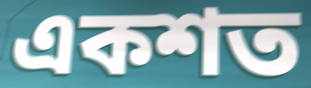
একশত